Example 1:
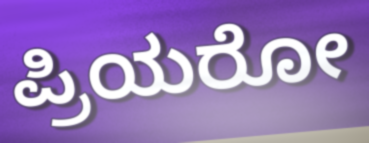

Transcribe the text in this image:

ಪ್ರಿಯರೋ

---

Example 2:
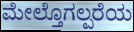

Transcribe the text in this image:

ಮೇಲ್ತೊಗಲ್ಪರೆಯ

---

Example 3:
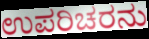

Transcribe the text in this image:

ಉಪರಿಚರನು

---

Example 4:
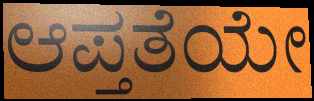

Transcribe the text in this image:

ಆಪ್ತತೆಯೇ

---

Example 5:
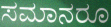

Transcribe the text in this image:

ಸಮಾನರೂ